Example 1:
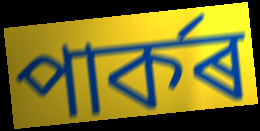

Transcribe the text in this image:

পাৰ্কৰ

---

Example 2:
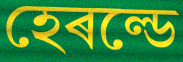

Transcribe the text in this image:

হেৰল্ডে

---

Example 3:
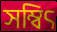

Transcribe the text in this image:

সম্বিৎ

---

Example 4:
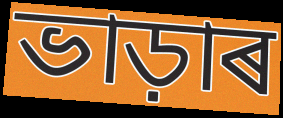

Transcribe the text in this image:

ভাড়াৰ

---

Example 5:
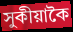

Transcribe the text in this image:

সুকীয়াকৈ